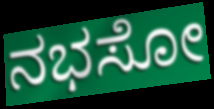
ನಭಸೋ